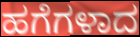
ಹಗೆಗಳಾದ